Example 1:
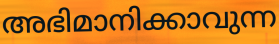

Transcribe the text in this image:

അഭിമാനിക്കാവുന്ന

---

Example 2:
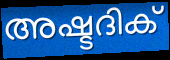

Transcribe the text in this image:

അഷ്ടദിക്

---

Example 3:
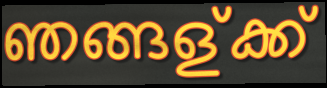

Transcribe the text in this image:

ഞങ്ങള്ക്ക്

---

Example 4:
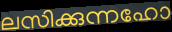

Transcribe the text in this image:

ലസിക്കുന്നഹോ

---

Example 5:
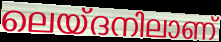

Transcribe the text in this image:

ലെയ്ദനിലാണ്